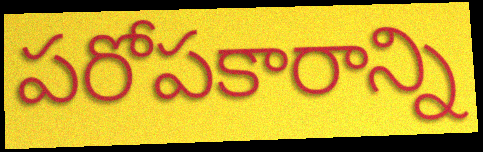
పరోపకారాన్ని